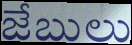
జేబులు